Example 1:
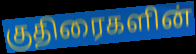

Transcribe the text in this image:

குதிரைகளின்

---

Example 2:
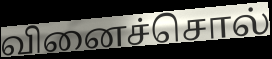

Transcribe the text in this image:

வினைச்சொல்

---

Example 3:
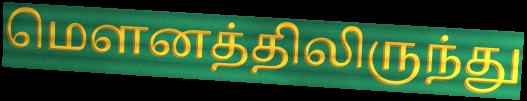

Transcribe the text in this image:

மௌனத்திலிருந்து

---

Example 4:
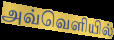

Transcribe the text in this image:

அவ்வெளியில்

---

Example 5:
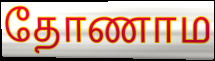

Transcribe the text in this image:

தோணாம